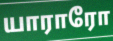
யாராரோ